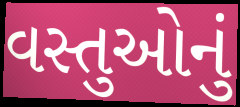
વસ્તુઓનું